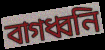
বাগধ্বনি